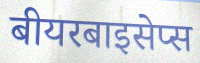
बीयरबाइसेप्स